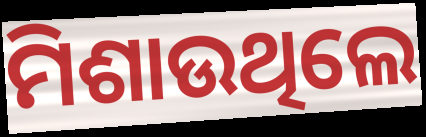
ମିଶାଉଥିଲେ